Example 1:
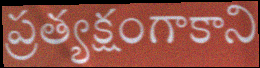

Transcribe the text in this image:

ప్రత్యక్షంగాకాని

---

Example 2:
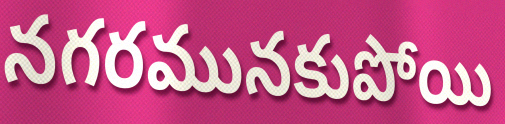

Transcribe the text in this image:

నగరమునకుపోయి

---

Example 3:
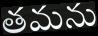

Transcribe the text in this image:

తమను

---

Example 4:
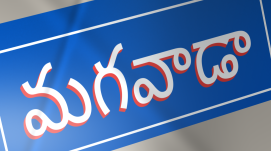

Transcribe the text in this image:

మగవాడా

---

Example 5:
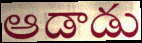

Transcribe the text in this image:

ఆడాడు